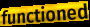
functioned